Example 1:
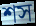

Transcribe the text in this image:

শস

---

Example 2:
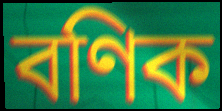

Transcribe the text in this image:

বণিক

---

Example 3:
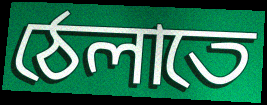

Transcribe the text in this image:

ঠেলাতে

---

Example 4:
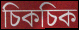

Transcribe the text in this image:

চিকচিক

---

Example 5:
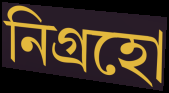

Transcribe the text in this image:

নিগ্রহো